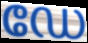
ഡേ